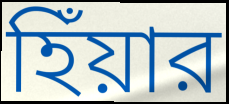
হিঁয়ার